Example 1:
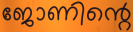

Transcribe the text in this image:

ജോണിന്റെ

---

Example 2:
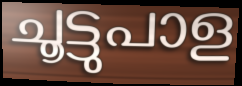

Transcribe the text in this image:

ചൂട്ടുപാള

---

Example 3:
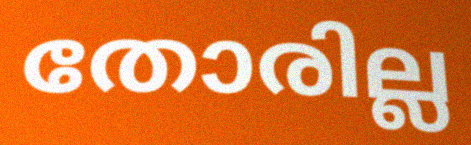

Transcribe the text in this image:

തോരില്ല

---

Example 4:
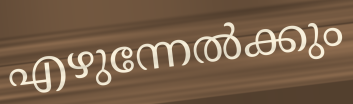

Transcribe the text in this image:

എഴുന്നേൽക്കും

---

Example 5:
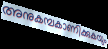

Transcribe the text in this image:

അനുകമ്പകാണിക്കുകയും